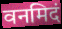
वनमिदं